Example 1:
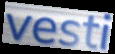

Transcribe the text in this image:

vesti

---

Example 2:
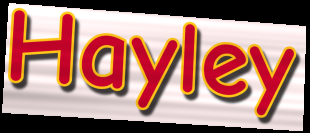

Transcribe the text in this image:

Hayley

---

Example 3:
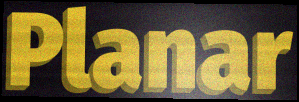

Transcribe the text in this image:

Planar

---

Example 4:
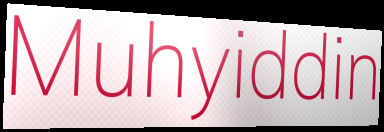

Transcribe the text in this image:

Muhyiddin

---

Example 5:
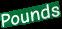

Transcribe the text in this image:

Pounds